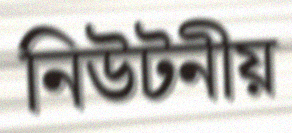
নিউটনীয়